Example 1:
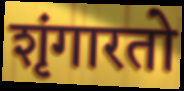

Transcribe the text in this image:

शृंगारतो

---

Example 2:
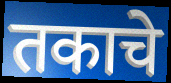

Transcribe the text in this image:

तकाचे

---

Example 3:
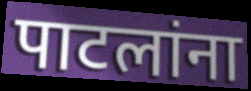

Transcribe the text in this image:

पाटलांना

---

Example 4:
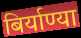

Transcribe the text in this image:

बिर्याण्या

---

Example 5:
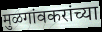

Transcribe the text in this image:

मुळगांवकरांच्या